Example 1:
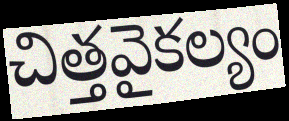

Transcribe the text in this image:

చిత్తవైకల్యం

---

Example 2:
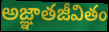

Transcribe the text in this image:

అజ్ఞాతజీవితం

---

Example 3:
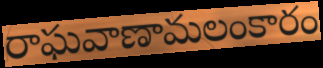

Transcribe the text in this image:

రాఘవాణామలంకారం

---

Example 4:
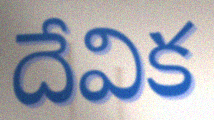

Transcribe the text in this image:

దేవిక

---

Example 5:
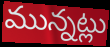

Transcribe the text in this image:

మున్నట్లు